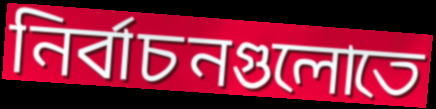
নির্বাচনগুলোতে